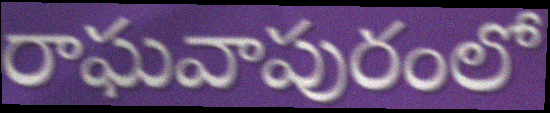
రాఘవాపురంలో